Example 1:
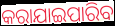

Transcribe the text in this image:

କରାଯାଇପାରିବ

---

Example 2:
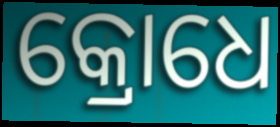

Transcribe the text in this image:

କ୍ରୋଧେ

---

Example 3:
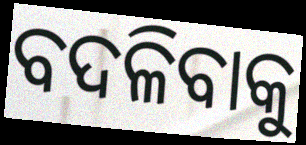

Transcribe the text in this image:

ବଦଳିବାକୁ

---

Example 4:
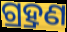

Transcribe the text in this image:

ଗ୍ର୍ରହଣ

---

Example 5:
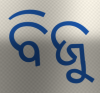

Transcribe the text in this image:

ବିଜୁ